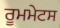
ਰੂਮਮੇਟਸ